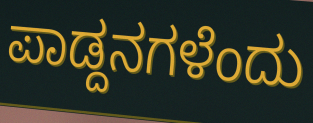
ಪಾಡ್ದನಗಳೆಂದು